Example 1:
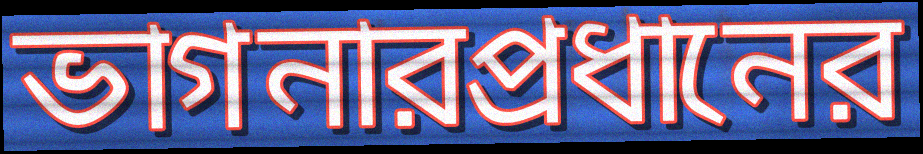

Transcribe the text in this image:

ভাগনারপ্রধানের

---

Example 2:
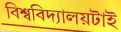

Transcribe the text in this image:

বিশ্ববিদ্যালয়টাই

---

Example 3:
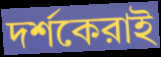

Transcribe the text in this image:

দর্শকেরাই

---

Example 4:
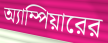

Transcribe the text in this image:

অ্যাম্পিয়ারের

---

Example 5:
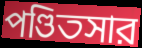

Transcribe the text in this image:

পণ্ডিতসার